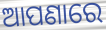
ଆପଣାରେ